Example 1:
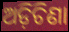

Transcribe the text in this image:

ଅଡ଼ିଚିଣା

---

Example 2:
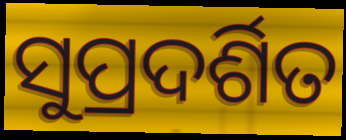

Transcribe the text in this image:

ସୁପ୍ରଦର୍ଶିତ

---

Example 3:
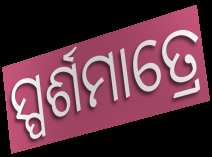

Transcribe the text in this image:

ସ୍ପର୍ଶମାତ୍ରେ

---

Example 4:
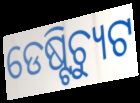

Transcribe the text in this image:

ଡେଷ୍ଟିଚ୍ୟୁଟ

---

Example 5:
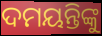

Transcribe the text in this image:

ଦମୟନ୍ତିଙ୍କୁ